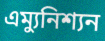
এম্যুনিশ্যন